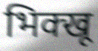
भिक्‍खू